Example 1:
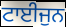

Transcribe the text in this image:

ਟਾਈਜੁਨ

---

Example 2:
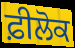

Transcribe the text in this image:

ਫ਼ੀਲੋਕ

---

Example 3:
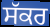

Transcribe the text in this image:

ਸੱਕਰ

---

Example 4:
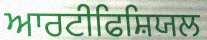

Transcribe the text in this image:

ਆਰਟੀਫਿਸ਼ਿਯਲ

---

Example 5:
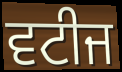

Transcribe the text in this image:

ਵਟੀਜ